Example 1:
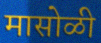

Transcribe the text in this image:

मासोळी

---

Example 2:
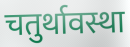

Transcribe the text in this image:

चतुर्थावस्था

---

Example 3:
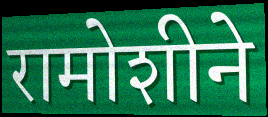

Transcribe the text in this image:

रामोशीने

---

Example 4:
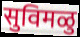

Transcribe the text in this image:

सुविमळु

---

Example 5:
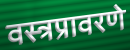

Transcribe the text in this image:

वस्त्रप्रावरणे